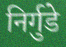
निर्गुडे